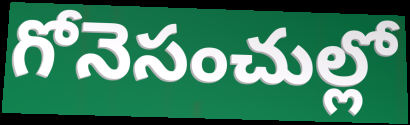
గోనెసంచుల్లో